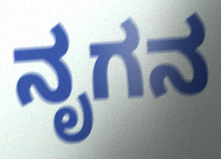
ನೃಗನ